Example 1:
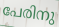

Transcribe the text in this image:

പേരിനു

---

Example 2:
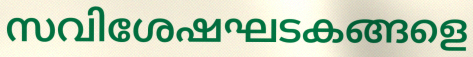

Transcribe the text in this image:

സവിശേഷഘടകങ്ങളെ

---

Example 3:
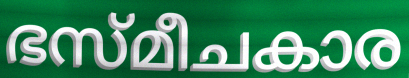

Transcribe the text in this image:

ഭസ്മീചകാര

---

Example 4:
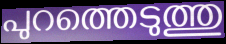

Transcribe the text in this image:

പുറത്തെടുത്തു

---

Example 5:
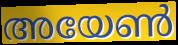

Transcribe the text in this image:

അയേൺ